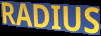
RADIUS